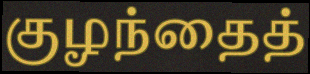
குழந்தைத்